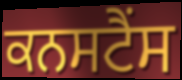
ਕਨਸਟੈਂਸ